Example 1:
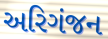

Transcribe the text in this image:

અરિગંજન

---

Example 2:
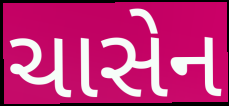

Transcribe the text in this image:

ચાસેન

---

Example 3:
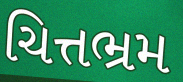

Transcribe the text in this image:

ચિત્તભ્રમ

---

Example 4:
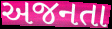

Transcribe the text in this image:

અજનતા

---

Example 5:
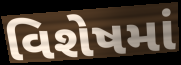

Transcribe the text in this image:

વિશેષમાં